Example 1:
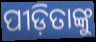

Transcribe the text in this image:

ପୀଡ଼ିତାଙ୍କୁ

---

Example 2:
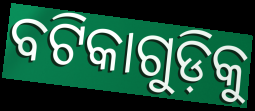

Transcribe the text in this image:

ବଟିକାଗୁଡ଼ିକୁ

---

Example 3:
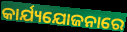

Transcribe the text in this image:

କାର୍ଯ୍ୟଯୋଜନାରେ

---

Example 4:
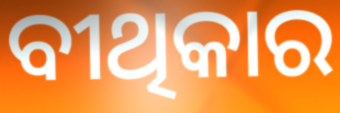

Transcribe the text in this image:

ବୀଥିକାର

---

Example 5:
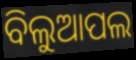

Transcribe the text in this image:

ବିଲୁଆପଲ